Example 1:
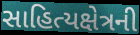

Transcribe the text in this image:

સાહિત્યક્ષેત્રની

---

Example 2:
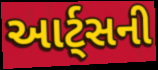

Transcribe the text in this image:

આર્ટ્સની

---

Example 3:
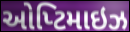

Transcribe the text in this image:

ઓપ્ટિમાઇઝ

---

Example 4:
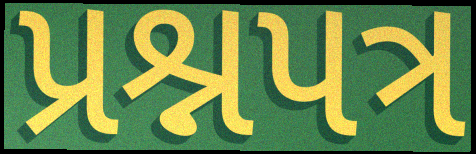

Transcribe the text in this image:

પ્રશ્નપત્ર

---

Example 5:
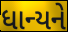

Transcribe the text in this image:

ધાન્યને